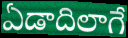
ఏడాదిలాగే